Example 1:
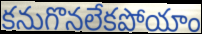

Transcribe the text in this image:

కనుగొనలేకపోయాం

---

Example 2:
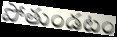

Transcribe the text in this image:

పోతుండటం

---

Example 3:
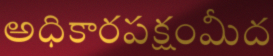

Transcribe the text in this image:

అధికారపక్షంమీద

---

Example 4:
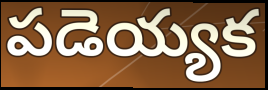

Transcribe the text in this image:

పడెయ్యక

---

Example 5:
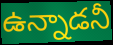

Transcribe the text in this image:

ఉన్నాడనీ